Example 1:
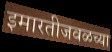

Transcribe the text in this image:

इमारतीजवळच्या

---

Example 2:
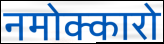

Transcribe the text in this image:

नमोक्कारो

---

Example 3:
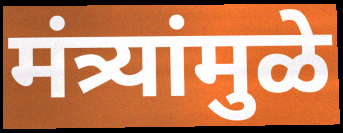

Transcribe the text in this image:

मंत्र्यांमुळे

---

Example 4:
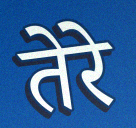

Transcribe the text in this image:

तेरे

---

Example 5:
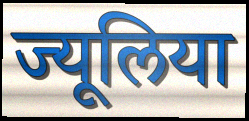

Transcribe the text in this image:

ज्यूलिया